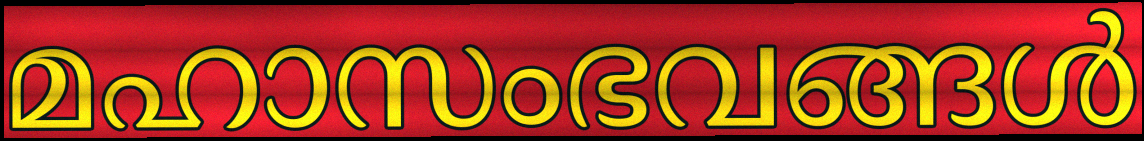
മഹാസംഭവങ്ങൾ